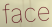
face